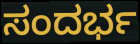
ಸಂದರ್ಭ